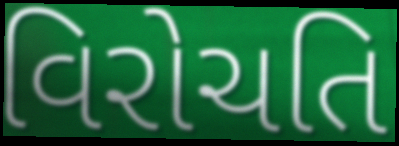
વિરોચતિ